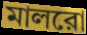
মালরো